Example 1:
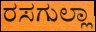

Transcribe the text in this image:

ರಸಗುಲ್ಲಾ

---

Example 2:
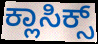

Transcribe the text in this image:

ಕ್ಲಾಸಿಕ್ಸ್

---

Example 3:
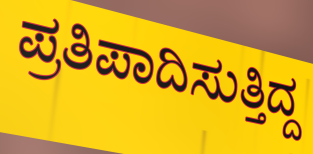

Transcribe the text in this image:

ಪ್ರತಿಪಾದಿಸುತ್ತಿದ್ದ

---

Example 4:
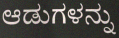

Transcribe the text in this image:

ಆಡುಗಳನ್ನು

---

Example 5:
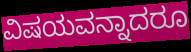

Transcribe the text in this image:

ವಿಷಯವನ್ನಾದರೂ